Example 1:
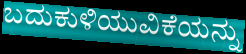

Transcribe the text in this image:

ಬದುಕುಳಿಯುವಿಕೆಯನ್ನು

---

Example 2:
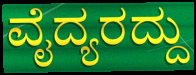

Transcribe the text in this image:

ವೈದ್ಯರದ್ದು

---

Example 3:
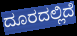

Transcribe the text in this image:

ದೂರದಲ್ಲಿದೆ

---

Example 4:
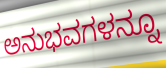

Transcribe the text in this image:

ಅನುಭವಗಳನ್ನೂ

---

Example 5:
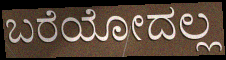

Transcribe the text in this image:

ಬರೆಯೋದಲ್ಲ